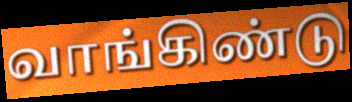
வாங்கிண்டு